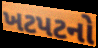
ખટપટનો